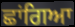
ਛਾਂਗਿਆ